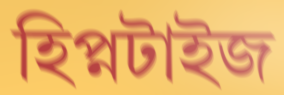
হিপ্নটাইজ